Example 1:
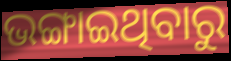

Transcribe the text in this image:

ଭଙ୍ଗାଇଥିବାରୁ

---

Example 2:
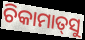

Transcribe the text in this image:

ଚିକାମାତ୍‌ସୁ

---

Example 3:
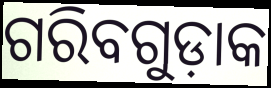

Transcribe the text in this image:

ଗରିବଗୁଡ଼ାକ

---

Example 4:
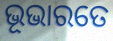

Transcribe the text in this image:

ଭୂଭାରତେ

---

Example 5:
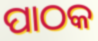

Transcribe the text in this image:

ପାଠକ